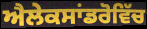
ਐਲੇਕਸਾਂਡਰੋਵਿੱਚ